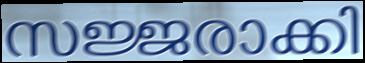
സജ്ജരാക്കി